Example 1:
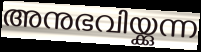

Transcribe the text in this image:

അനുഭവിയ്ക്കുന്ന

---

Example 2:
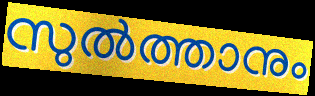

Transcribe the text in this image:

സുൽത്താനും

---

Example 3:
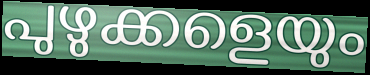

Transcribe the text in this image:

പുഴുക്കളെയും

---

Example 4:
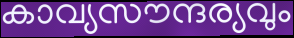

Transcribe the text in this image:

കാവ്യസൗന്ദര്യവും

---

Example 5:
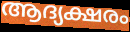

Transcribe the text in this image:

ആദ്യക്ഷരം